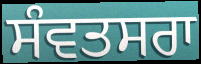
ਸੰਵਤਸਰਾ